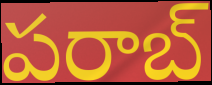
పరాబ్